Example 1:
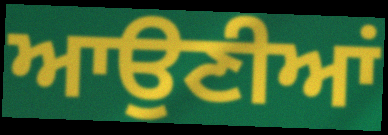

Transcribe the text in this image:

ਆਉਣੀਆਂ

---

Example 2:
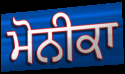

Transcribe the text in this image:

ਮੋਨੀਕਾ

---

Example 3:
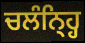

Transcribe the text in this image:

ਚਲੰਨ੍ਹ੍ਹਿ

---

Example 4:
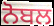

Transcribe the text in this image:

ਨੋਬਲ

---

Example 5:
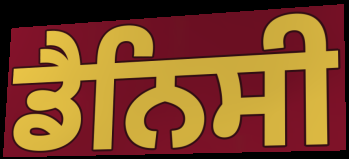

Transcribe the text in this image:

ਡੈਨਿਸੀ